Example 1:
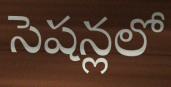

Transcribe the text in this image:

సెషన్లలో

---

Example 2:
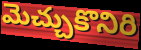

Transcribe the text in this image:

మెచ్చుకొనిరి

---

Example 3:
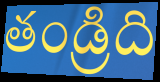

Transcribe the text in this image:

తండ్రిది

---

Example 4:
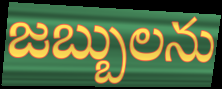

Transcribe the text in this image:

జబ్బులను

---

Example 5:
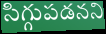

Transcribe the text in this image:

సిగ్గుపడనని